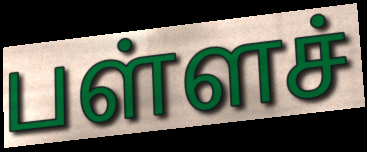
பள்ளச்